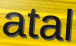
atal